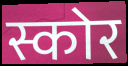
स्कोर